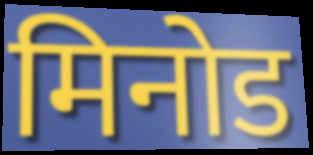
मिनोड